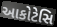
આકોટેસિ